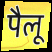
पैलू